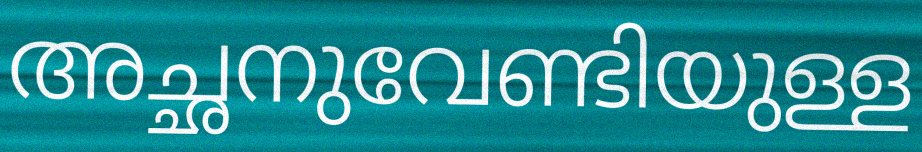
അച്ഛനുവേണ്ടിയുള്ള